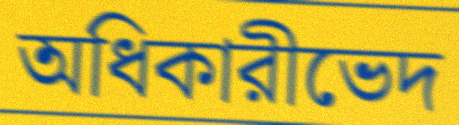
অধিকারীভেদ